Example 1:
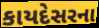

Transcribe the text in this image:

કાયદેસરના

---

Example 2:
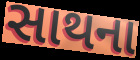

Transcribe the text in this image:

સાથના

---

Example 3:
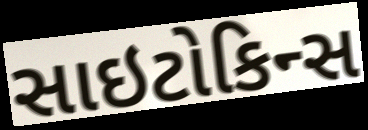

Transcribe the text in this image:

સાઇટોકિન્સ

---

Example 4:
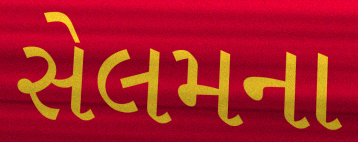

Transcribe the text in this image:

સેલમના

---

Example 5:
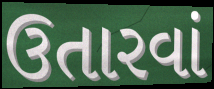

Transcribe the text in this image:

ઉતારવાં